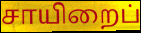
சாயிறைப்